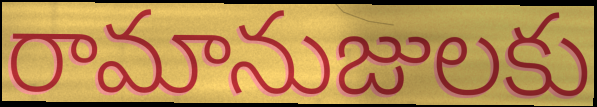
రామానుజులకు